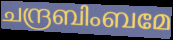
ചന്ദ്രബിംബമേ